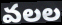
వలల